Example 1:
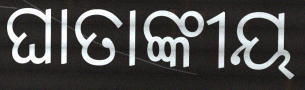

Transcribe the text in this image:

ଘାତାଙ୍କୀୟ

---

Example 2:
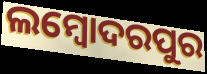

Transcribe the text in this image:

ଲମ୍ବୋଦରପୁର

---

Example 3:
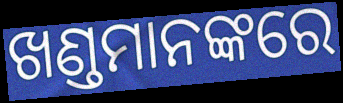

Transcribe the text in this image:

ଖଣ୍ଡମାନଙ୍କରେ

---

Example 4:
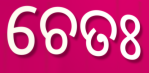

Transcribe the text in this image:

ଚେତଃ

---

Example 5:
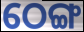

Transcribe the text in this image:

ଠେଙ୍ଗ